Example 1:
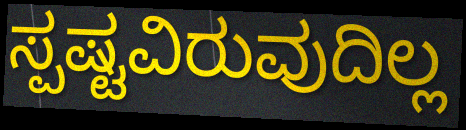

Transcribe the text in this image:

ಸ್ಪಷ್ಟವಿರುವುದಿಲ್ಲ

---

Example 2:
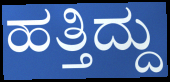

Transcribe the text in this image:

ಹತ್ತಿದ್ದು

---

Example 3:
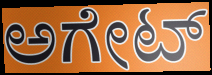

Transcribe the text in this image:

ಅಗೇಟ್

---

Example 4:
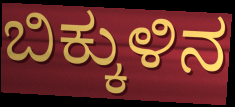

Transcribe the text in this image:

ಬಿಕ್ಕುಳಿನ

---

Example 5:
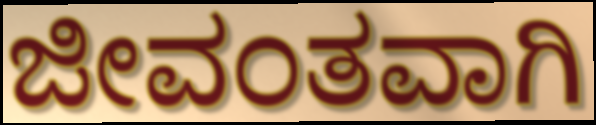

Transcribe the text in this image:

ಜೀವಂತವಾಗಿ